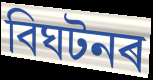
বিঘটনৰ